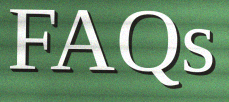
FAQs